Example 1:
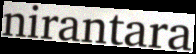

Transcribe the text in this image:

nirantara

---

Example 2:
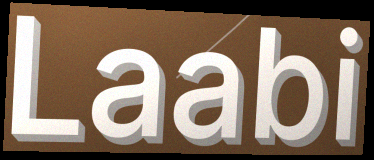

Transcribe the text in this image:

Laabi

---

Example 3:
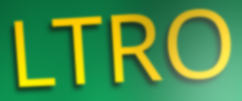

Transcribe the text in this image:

LTRO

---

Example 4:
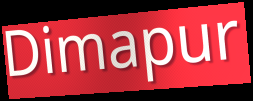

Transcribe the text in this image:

Dimapur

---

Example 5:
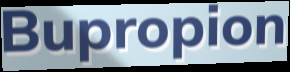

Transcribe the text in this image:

Bupropion